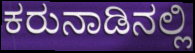
ಕರುನಾಡಿನಲ್ಲಿ